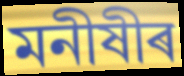
মনীষীৰ